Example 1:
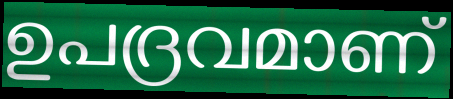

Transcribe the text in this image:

ഉപദ്രവമാണ്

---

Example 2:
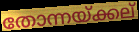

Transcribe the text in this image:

തോന്നയ്ക്കല്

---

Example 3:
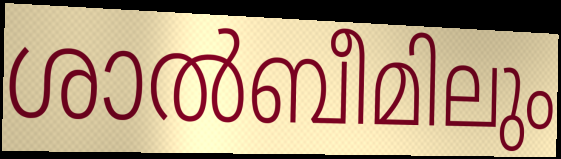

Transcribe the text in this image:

ശാൽബീമിലും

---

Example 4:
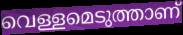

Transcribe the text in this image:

വെള്ളമെടുത്താണ്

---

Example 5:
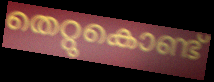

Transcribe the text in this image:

തെറ്റുകൊണ്ട്